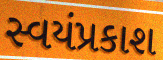
સ્વયંપ્રકાશ